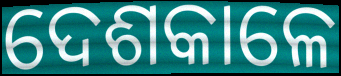
ଦେଶକାଳେ